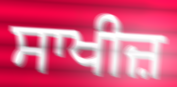
ਸਾਖੀਜ਼